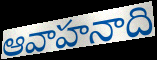
ఆవాహనాది